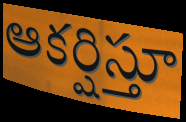
ఆకర్షిస్తూ